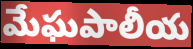
మేఘపాలీయ